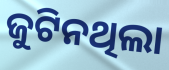
ଜୁଟିନଥିଲା